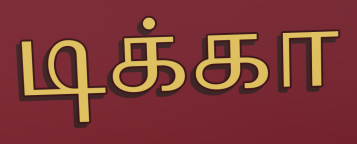
டிக்கா